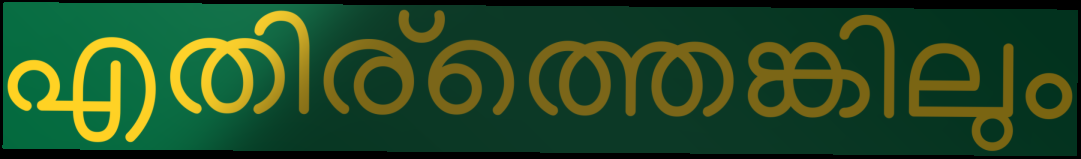
എതിര്ത്തെങ്കിലും